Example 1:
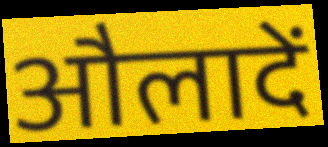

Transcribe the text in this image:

औलादें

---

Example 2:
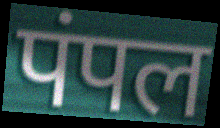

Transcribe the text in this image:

पंपल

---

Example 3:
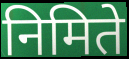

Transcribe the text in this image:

निमिते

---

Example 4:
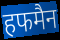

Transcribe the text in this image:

हफमैन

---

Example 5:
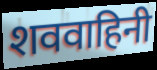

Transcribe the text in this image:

शववाहिनी